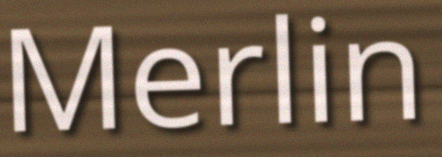
Merlin